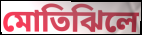
মোতিঝিলে